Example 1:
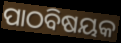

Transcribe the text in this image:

ପାଠବିଷୟକ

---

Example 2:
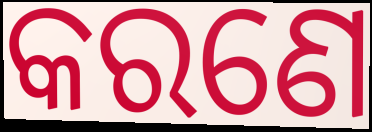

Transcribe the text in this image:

କରଣେ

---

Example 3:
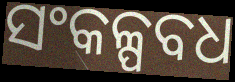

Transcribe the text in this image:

ସଂକଳ୍ପବଧ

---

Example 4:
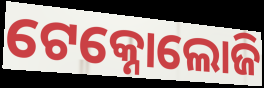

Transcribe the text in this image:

ଟେକ୍ନୋଲୋଜି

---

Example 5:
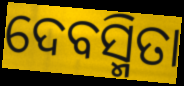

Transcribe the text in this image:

ଦେବସ୍ମିତା